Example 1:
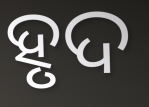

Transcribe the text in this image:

ହୃଦ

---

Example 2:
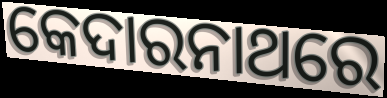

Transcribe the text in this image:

କେଦାରନାଥରେ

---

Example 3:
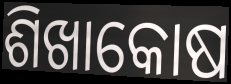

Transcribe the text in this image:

ଶିଖାକୋଷ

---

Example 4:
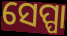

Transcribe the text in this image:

ସେପ୍ପା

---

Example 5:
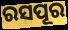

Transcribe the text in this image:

ରସପୂର